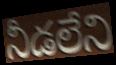
నీడలేని